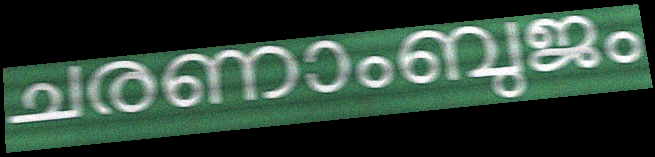
ചരണാംബുജം